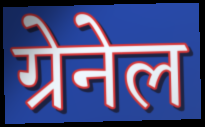
ग्रेनेल